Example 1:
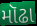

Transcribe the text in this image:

મૉઢા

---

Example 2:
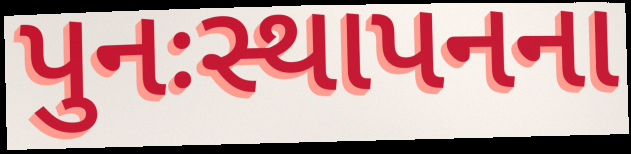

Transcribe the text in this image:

પુનઃસ્થાપનના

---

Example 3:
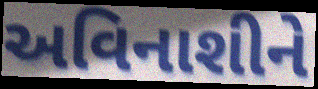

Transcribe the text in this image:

અવિનાશીને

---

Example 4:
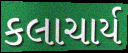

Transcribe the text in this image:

કલાચાર્ય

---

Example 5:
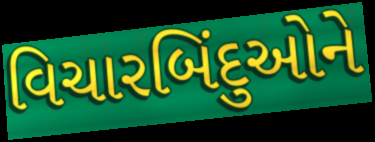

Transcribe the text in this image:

વિચારબિંદુઓને